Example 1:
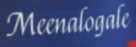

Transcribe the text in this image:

Meenalogale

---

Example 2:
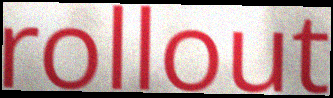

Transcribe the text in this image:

rollout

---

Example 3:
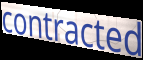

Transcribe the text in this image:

contracted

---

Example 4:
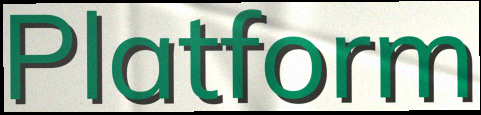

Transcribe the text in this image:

Platform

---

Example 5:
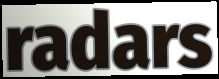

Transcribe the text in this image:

radars